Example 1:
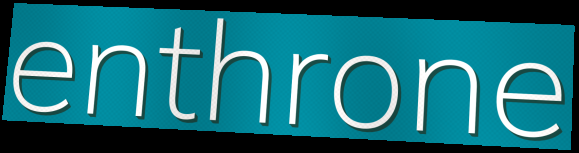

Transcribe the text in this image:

enthrone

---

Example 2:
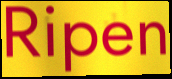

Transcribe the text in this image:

Ripen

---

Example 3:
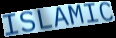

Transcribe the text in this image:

ISLAMIC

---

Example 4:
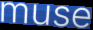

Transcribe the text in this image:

muse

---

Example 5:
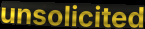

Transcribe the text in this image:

unsolicited